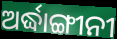
ଅର୍ଦ୍ଧାଙ୍ଗୀନୀ